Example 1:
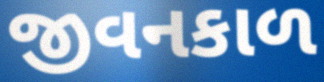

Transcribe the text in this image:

જીવનકાળ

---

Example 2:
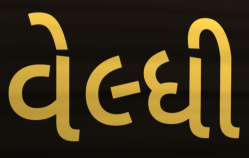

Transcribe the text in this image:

વેલ્ધી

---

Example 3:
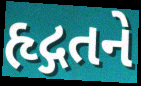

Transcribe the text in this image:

હૃદ્ગતને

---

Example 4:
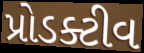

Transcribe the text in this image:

પ્રોડક્ટીવ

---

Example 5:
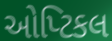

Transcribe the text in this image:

ઓપ્ટિકલ